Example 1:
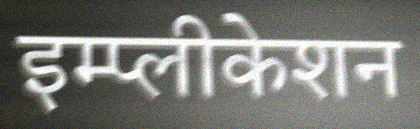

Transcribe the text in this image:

इम्प्लीकेशन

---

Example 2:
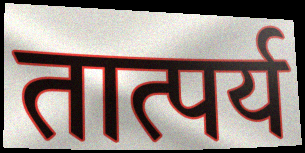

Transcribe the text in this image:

तात्पर्य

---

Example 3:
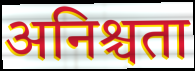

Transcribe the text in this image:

अनिश्चता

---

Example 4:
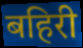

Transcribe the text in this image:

बहिरी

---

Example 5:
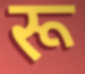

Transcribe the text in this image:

रू